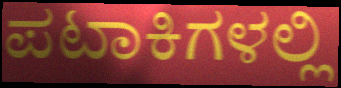
ಪಟಾಕಿಗಳಲ್ಲಿ